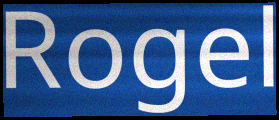
Rogel